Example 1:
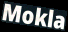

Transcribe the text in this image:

Mokla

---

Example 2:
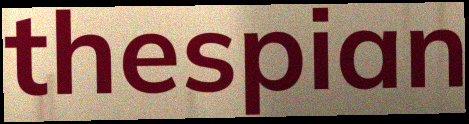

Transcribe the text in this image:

thespian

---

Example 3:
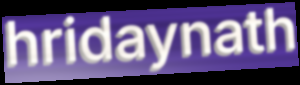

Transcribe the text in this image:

hridaynath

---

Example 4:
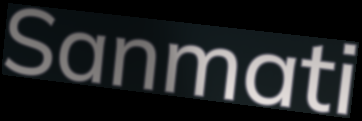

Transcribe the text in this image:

Sanmati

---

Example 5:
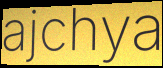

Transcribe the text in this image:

ajchya